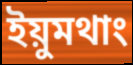
ইয়ুমথাং